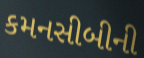
કમનસીબીની